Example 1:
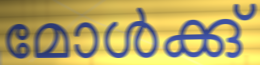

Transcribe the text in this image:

മോൾക്കു്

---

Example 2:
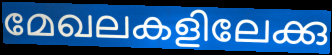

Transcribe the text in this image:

മേഖലകളിലേക്കു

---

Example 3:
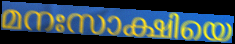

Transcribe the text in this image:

മനഃസാക്ഷിയെ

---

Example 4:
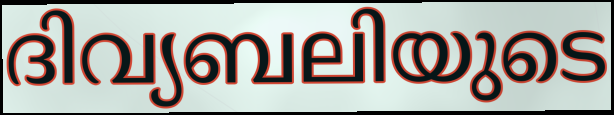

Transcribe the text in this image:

ദിവ്യബലിയുടെ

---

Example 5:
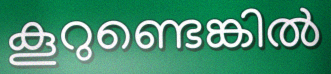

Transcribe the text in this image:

കൂറുണ്ടെങ്കിൽ